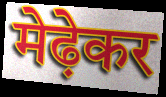
मेढ़ेकर